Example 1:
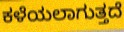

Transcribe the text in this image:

ಕಳೆಯಲಾಗುತ್ತದೆ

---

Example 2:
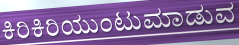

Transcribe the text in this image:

ಕಿರಿಕಿರಿಯುಂಟುಮಾಡುವ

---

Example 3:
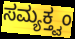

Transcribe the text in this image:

ಸಮ್ಯಕ್ತ್ವಂ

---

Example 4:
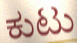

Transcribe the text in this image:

ಕುಟು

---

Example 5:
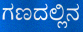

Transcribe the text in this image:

ಗಣದಲ್ಲಿನ